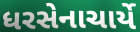
ધરસેનાચાર્યે